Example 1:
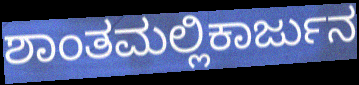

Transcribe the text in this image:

ಶಾಂತಮಲ್ಲಿಕಾರ್ಜುನ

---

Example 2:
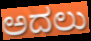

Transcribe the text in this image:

ಅದಲು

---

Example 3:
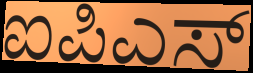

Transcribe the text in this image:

ಐಪಿಎಸ್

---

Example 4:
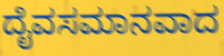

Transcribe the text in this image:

ದೈವಸಮಾನವಾದ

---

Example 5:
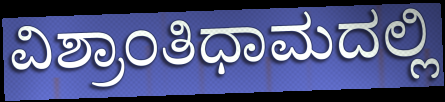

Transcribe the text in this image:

ವಿಶ್ರಾಂತಿಧಾಮದಲ್ಲಿ